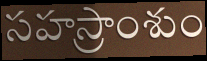
సహస్రాంశుం